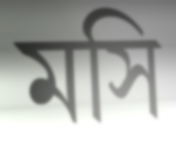
মসি